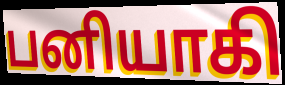
பனியாகி